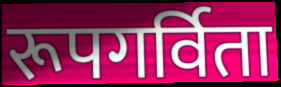
रूपगर्विता